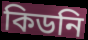
কিডনি